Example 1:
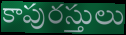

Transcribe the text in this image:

కాపురస్తులు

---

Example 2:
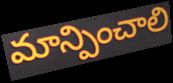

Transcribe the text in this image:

మాన్పించాలి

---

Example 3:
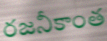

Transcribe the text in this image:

రజనీకాంత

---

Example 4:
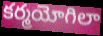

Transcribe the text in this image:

కర్మయోగిలా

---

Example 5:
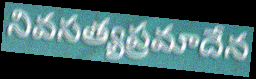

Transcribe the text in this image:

నివసత్యప్రమాదేన